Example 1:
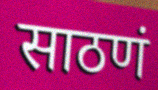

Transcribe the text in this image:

साठणं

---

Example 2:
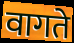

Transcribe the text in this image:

वागते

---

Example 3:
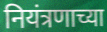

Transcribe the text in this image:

नियंत्रणाच्या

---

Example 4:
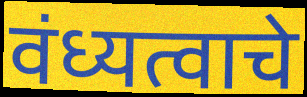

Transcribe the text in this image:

वंध्यत्वाचे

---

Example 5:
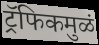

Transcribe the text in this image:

ट्रॅफिकमुळं